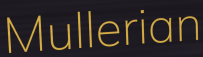
Mullerian